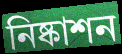
নিষ্কাশন